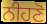
ਨੀਹਣੋ